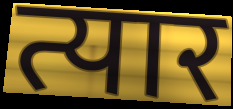
त्यार